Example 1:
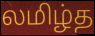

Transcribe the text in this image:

லமிழ்த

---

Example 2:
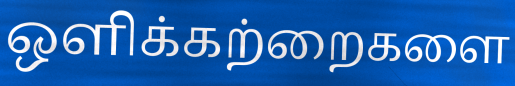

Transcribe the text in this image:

ஒளிக்கற்றைகளை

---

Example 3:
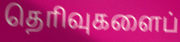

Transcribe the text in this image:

தெரிவுகளைப்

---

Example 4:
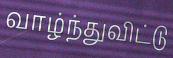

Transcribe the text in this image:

வாழ்ந்துவிட்டு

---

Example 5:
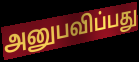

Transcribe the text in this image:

அனுபவிப்பது